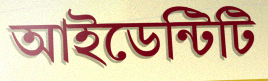
আইডেন্টিটি